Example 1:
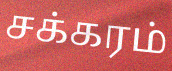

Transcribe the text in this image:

சக்கரம்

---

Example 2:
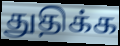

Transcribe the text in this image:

துதிக்க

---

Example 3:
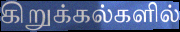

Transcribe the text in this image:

கிறுக்கல்களில்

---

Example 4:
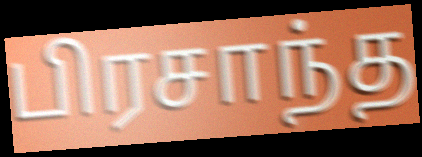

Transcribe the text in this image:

பிரசாந்த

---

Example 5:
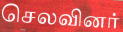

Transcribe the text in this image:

செலவினர்